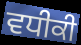
ਵਧੀਕੀ